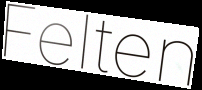
Felten